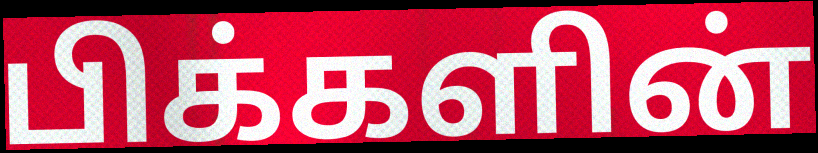
பிக்களின்